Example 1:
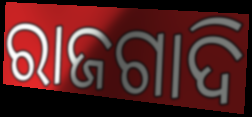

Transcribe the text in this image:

ରାଜଗାଦି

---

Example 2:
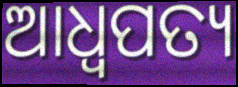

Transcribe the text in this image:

ଆଧ୍ଵପତ୍ୟ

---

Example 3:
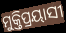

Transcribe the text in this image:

ମୁକ୍ତିପ୍ରୟାସୀ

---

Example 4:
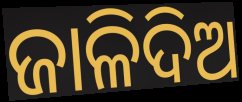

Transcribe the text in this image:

ଜାଳିଦିଅ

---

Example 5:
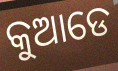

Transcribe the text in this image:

କୁଆଡେ